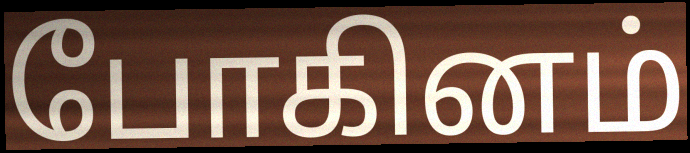
போகினம்